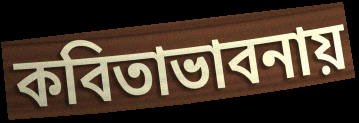
কবিতাভাবনায়